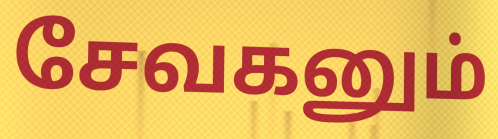
சேவகனும்